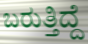
ಬರುತ್ತಿದ್ದೆ